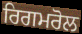
ਰਿਗਮਰੋਲ